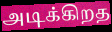
அடிக்கிறத